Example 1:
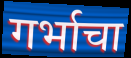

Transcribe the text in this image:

गर्भाचा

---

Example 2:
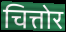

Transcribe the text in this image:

चित्तोर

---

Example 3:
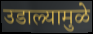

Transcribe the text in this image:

उडाल्यामुळे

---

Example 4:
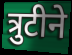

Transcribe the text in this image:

त्रुटीने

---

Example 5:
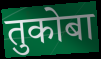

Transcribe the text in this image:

तुकोबा